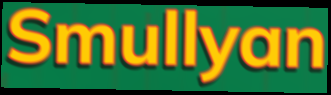
Smullyan